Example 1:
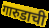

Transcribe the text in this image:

गारुडाची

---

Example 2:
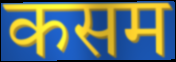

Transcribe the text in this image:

कसम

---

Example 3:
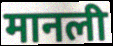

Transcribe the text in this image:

मानली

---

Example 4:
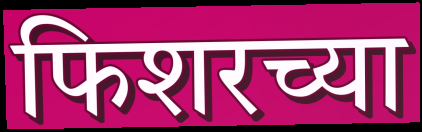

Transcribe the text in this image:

फिशरच्या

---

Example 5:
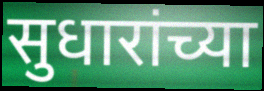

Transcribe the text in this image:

सुधारांच्या